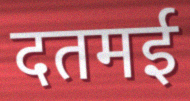
दतमई